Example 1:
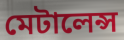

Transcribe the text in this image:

মেটালেন্স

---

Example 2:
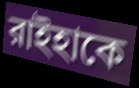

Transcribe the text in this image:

রাইহাকে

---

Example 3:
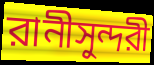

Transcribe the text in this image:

রানীসুন্দরী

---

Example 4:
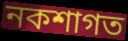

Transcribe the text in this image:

নকশাগত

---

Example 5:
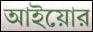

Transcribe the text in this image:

আইয়োর